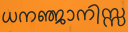
ധനഞ്ജാനിസ്സ